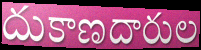
దుకాణదారుల